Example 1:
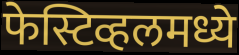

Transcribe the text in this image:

फेस्टिव्हलमध्ये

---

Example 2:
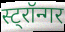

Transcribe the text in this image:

स्ट्रॉन्गर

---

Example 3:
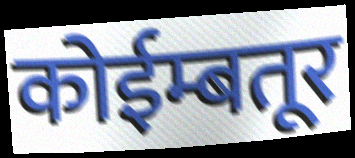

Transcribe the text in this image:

कोईम्बतूर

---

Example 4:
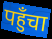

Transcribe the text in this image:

पहुँचा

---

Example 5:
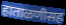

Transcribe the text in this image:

हाताळणीसह